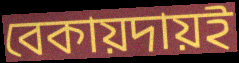
বেকায়দায়ই